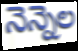
నెన్నెల